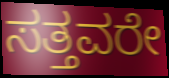
ಸತ್ತವರೇ